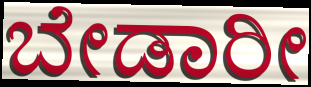
ಬೇಡಾರೀ